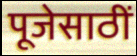
पूजेसाठीं